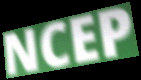
NCEP